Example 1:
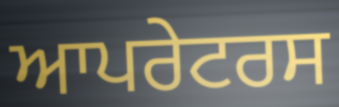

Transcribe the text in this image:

ਆਪਰੇਟਰਸ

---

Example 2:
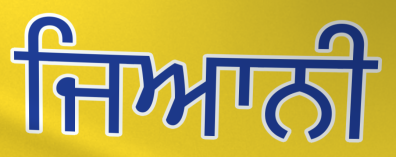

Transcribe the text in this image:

ਜਿਆਨੀ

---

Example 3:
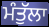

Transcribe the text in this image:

ਮੰਤੁੱਲਾ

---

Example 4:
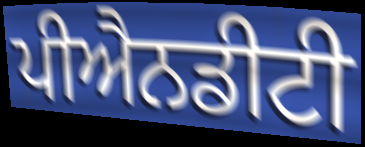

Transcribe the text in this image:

ਪੀਐਨਡੀਟੀ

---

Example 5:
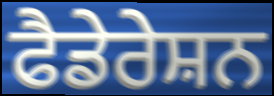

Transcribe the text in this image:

ਫੈਡੇਰੇਸ਼ਨ